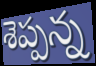
శెప్పన్న